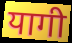
यागी